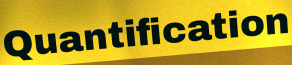
Quantification